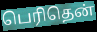
பெரிதென்